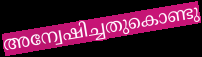
അന്വേഷിച്ചതുകൊണ്ടു